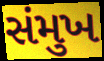
સંમુખ